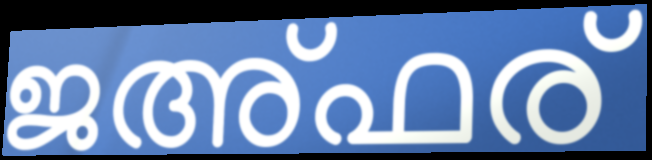
ജഅ്ഫര്